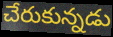
చేరుకున్నడు